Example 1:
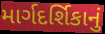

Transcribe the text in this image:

માર્ગદર્શિકાનું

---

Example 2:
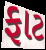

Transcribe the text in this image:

ફાટ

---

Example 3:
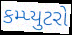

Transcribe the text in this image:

કમ્પ્યુટરો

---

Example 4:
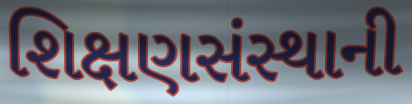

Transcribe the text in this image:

શિક્ષણસંસ્થાની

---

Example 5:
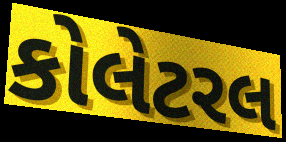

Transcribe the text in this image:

કોલેટરલ